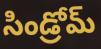
సిండ్రోమ్